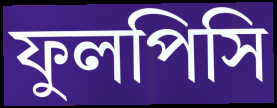
ফুলপিসি